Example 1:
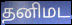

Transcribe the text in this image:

தனிமட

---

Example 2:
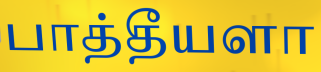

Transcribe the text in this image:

பாத்தீயளா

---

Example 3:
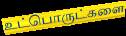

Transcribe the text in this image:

உட்பொருட்களை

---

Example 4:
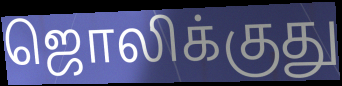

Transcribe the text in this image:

ஜொலிக்குது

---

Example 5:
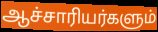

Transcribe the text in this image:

ஆச்சாரியர்களும்